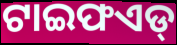
ଟାଇଫଏଡ୍